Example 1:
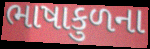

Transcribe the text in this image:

ભાષાકુળના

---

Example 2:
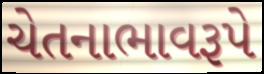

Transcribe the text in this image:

ચેતનાભાવરૂપે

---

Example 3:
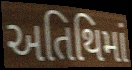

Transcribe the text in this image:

અતિથિમાં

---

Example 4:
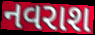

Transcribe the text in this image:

નવરાશ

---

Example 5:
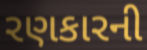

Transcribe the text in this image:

રણકારની